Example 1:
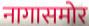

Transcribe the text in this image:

नागासमोर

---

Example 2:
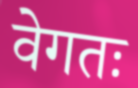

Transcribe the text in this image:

वेगतः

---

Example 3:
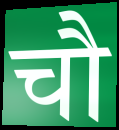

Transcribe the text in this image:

चौ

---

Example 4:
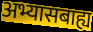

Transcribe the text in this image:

अभ्यासबाह्य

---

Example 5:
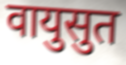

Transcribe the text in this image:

वायुसुत